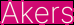
Akers